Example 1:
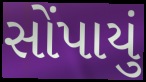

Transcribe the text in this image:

સોંપાયું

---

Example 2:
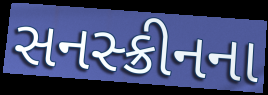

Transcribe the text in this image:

સનસ્ક્રીનના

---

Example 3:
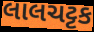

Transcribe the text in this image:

લાલચટ્ટક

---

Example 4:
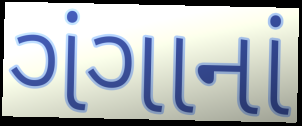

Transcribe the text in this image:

ગંગાનાં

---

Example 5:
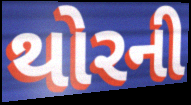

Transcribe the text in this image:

થોરની